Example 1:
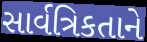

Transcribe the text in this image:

સાર્વત્રિકતાને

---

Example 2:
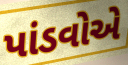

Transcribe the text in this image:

પાંડવોએ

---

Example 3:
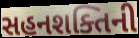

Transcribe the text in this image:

સહનશક્તિની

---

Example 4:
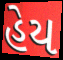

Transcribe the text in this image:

હેય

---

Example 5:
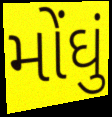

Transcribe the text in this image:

મોંઘું